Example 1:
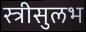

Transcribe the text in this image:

स्त्रीसुलभ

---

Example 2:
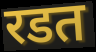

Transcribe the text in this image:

रडत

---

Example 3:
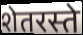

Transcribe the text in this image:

शेतरस्ते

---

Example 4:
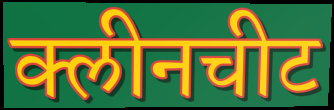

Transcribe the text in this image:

क्लीनचीट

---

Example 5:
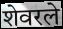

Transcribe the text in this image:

शेवरले